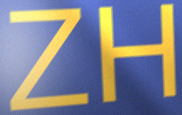
ZH